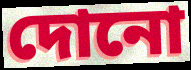
দোনো